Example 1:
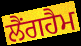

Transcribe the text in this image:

ਲੈਂਗਹੈਮ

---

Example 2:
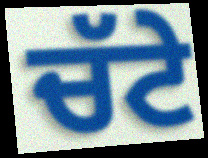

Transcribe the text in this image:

ਚੱਟੇ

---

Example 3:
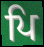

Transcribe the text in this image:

ਪਿ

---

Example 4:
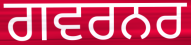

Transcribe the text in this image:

ਗਵਰਨਰ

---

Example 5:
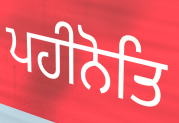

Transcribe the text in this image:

ਪਹੀਨੋਤਿ